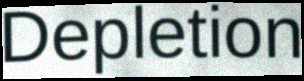
Depletion